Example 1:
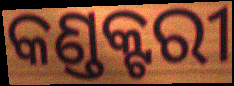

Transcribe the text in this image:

କଣ୍ଡକ୍ଟରୀ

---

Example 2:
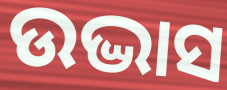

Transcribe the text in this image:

ଉଦ୍ଭାସ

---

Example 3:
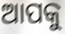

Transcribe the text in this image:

ଆପକୁ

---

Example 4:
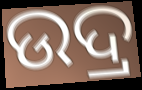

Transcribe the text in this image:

ଉଦ୍ର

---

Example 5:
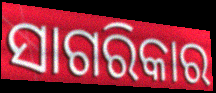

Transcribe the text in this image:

ସାଗରିକାର